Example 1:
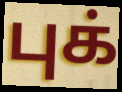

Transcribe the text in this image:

புக்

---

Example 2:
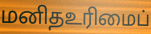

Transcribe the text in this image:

மனிதஉரிமைப்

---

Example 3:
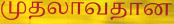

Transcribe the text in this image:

முதலாவதான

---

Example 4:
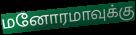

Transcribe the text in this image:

மனோரமாவுக்கு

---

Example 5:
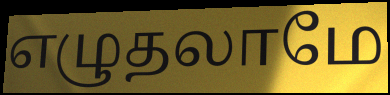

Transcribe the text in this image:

எழுதலாமே